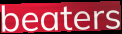
beaters